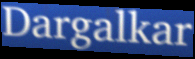
Dargalkar